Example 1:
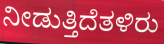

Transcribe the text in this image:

ನೀಡುತ್ತಿದೆತಳಿರು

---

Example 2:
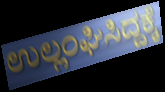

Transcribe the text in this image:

ಉಲ್ಲಂಘಿಸಿದ್ದಕ್ಕೆ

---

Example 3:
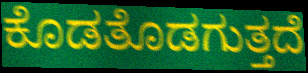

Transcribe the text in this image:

ಕೊಡತೊಡಗುತ್ತದೆ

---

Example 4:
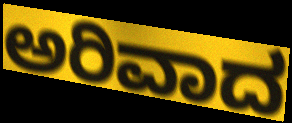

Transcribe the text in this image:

ಅರಿವಾದ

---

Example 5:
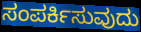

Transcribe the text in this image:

ಸಂಪರ್ಕಿಸುವುದು